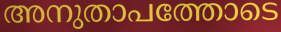
അനുതാപത്തോടെ